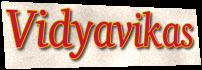
Vidyavikas